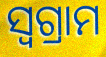
ସ୍ୱଗ୍ରାମ